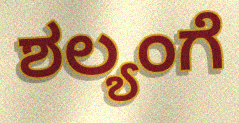
ಶಲ್ಯಂಗೆ